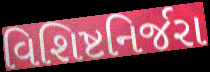
વિશિષ્ટનિર્જરા